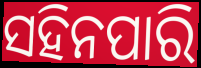
ସହିନପାରି